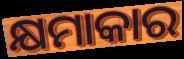
କ୍ଷମାକାର